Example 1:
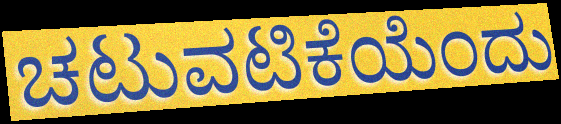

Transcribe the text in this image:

ಚಟುವಟಿಕೆಯೆಂದು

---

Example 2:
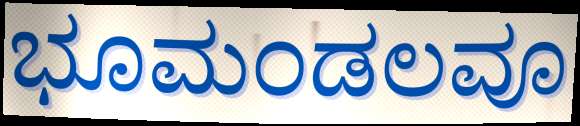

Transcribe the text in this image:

ಭೂಮಂಡಲವೂ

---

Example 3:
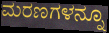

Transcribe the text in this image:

ಮರಣಗಳನ್ನೂ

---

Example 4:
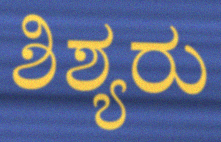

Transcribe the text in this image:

ಶಿಶ್ಯರು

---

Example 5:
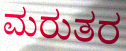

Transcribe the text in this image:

ಮರುತರ